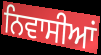
ਨਿਵਾਸੀਆਂ